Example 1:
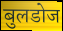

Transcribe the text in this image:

बुलडोज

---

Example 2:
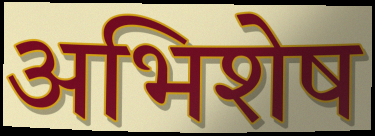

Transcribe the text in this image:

अभिशेष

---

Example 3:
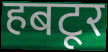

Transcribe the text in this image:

हबटूर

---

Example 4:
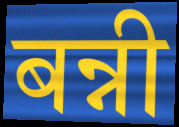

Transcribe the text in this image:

बन्नी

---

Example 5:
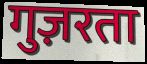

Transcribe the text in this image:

गुज़रता